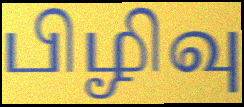
பிழிவு